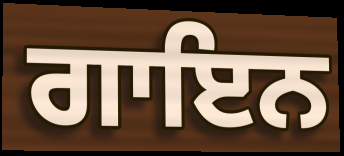
ਗਾਇਨ